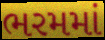
ભરમમાં